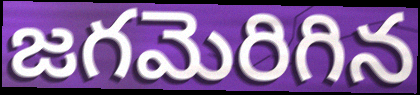
జగమెరిగిన